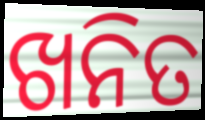
ଖନିତ